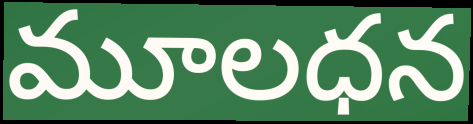
మూలధన